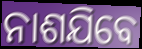
ନାଶଯିବେ